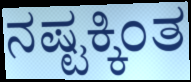
ನಷ್ಟಕ್ಕಿಂತ